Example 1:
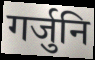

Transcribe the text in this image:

गर्जुनि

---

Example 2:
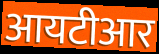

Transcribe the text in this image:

आयटीआर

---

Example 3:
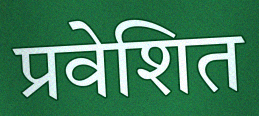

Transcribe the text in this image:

प्रवेशित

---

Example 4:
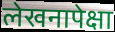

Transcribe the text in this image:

लेखनापेक्षा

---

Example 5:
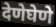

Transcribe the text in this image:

देणेघेणे